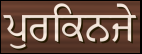
ਪੁਰਕਿਨਜੇ